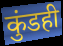
कुंडही